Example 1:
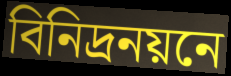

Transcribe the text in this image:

বিনিদ্রনয়নে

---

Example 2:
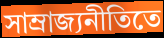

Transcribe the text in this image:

সাম্রাজ্যনীতিতে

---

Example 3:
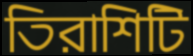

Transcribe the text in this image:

তিরাশিটি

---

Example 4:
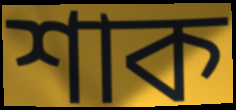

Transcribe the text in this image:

শাক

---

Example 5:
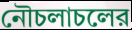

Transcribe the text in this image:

নৌচলাচলের